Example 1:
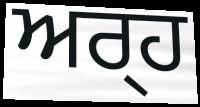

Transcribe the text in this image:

ਅਰ੍‍ਹ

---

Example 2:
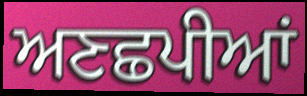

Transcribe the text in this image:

ਅਣਛਪੀਆਂ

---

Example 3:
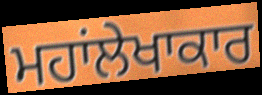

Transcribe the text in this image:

ਮਹਾਂਲੇਖਾਕਾਰ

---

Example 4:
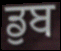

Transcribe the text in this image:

ਡੁਬ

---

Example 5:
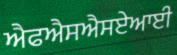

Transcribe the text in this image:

ਐਫਐਸਐਸਏਆਈ